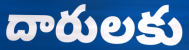
దారులకు